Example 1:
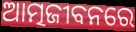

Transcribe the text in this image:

ଆତ୍ମଜୀବନରେ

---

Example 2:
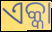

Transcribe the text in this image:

ଏକ୍କା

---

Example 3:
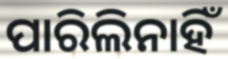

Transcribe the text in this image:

ପାରିଲିନାହିଁ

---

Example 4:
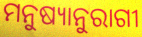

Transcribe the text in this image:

ମନୁଷ୍ୟାନୁରାଗୀ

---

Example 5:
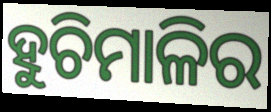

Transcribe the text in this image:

ହୁଚିମାଳିର